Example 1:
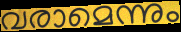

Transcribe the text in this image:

വരാമെന്നും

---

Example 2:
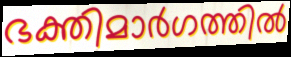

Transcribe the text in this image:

ഭക്തിമാർഗത്തിൽ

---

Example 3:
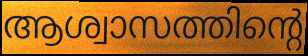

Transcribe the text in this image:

ആശ്വാസത്തിന്റെ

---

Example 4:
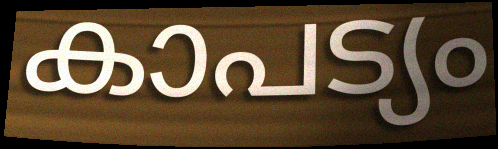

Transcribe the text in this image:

കാപട്യം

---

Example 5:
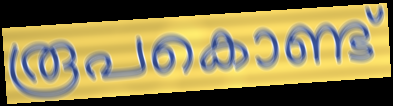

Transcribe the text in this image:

രൂപകൊണ്ട്